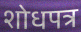
शोधपत्र